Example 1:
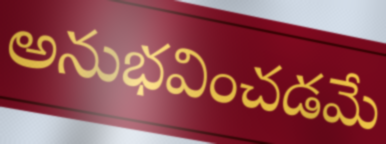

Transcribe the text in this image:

అనుభవించడమే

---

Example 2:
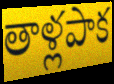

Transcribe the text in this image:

తాళ్లపాక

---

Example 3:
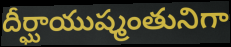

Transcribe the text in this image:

దీర్ఘాయుష్మంతునిగా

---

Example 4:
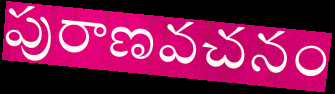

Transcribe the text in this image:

పురాణవచనం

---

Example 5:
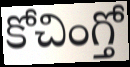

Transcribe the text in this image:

కోచింగ్తో